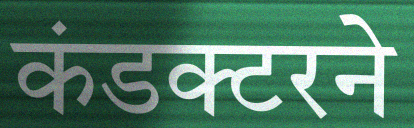
कंडक्टरने